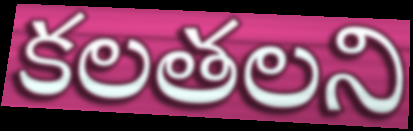
కలతలని